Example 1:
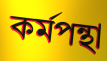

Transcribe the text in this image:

কৰ্মপন্থা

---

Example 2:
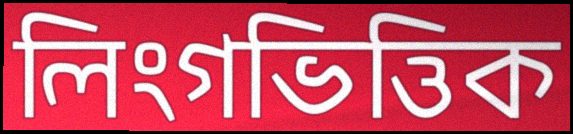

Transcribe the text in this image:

লিংগভিত্তিক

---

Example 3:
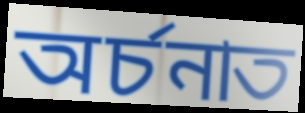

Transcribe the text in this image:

অৰ্চনাত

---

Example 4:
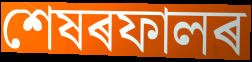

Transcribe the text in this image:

শেষৰফালৰ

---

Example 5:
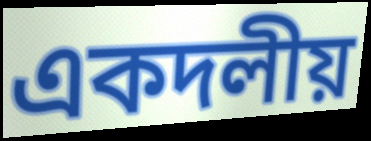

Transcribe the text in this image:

একদলীয়